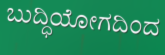
ಬುದ್ಧಿಯೋಗದಿಂದ